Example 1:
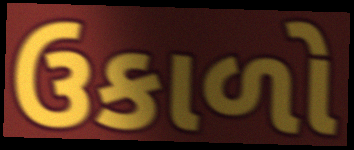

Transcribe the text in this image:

ઉકાળો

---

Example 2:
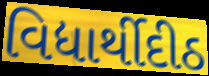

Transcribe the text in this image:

વિદ્યાર્થીદીઠ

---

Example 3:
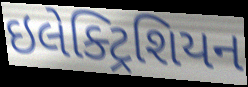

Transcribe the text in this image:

ઇલેક્ટ્રિશિયન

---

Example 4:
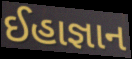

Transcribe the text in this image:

ઈહાજ્ઞાન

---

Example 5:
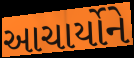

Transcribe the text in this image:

આચાર્યોને